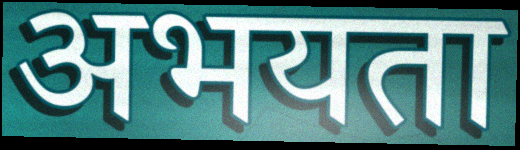
अभयता